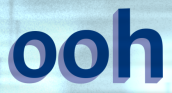
ooh